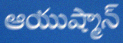
ఆయుష్మాన్